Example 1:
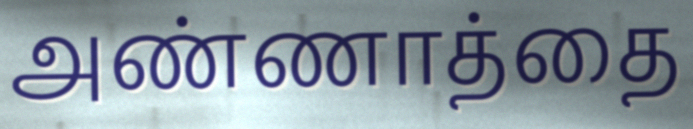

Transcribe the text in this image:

அண்ணாத்தை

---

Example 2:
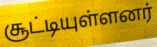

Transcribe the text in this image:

சூட்டியுள்ளனர்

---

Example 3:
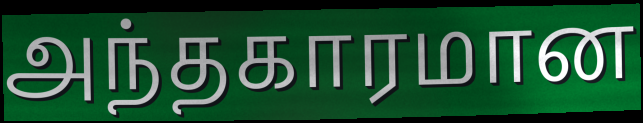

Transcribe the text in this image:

அந்தகாரமான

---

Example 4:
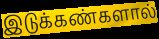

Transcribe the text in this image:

இடுக்கண்களால்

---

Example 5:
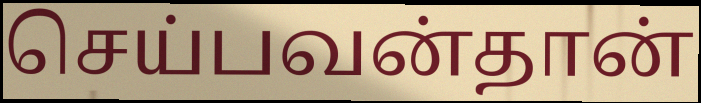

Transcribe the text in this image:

செய்பவன்தான்